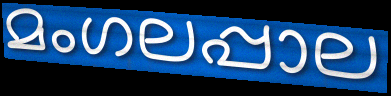
മംഗലപ്പാല